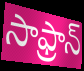
సాఫ్రాన్